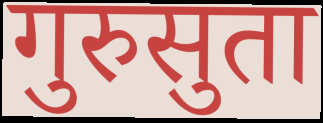
गुरुसुता